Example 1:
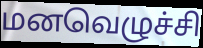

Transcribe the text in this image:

மனவெழுச்சி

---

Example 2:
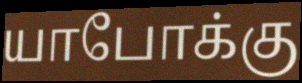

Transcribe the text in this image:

யாபோக்கு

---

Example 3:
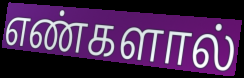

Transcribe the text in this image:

எண்களால்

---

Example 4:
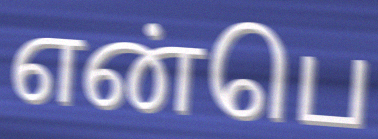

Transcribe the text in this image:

என்பெ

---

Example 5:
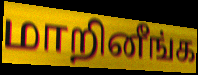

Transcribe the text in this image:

மாறினீங்க